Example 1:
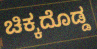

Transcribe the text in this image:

ಚಿಕ್ಕದೊಡ್ಡ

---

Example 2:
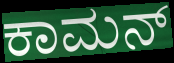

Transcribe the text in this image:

ಕಾಮನ್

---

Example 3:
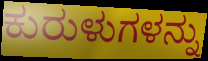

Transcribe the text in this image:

ಕುರುಳುಗಳನ್ನು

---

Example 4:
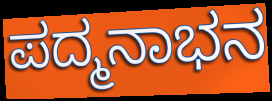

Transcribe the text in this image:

ಪದ್ಮನಾಭನ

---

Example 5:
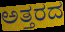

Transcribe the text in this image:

ಅತ್ತರದ